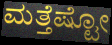
ಮತ್ತೆಷ್ಟೋ